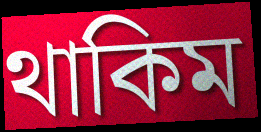
থাকিম